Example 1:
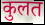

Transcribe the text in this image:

कुलत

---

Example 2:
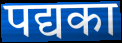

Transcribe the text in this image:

पद्यका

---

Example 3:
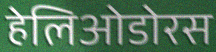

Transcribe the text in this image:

हेलिओडोरस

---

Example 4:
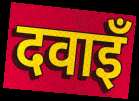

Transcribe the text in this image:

दवाइँ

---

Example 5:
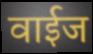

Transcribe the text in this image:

वाईज